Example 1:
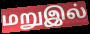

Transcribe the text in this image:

மறுஇல்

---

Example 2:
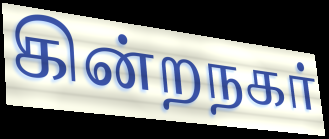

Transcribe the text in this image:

கின்றநகர்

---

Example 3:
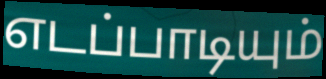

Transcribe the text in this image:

எடப்பாடியும்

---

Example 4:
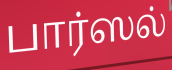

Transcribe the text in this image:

பார்ஸல்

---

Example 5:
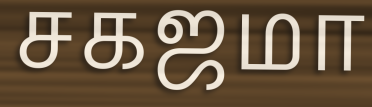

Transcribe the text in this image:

சகஜமா